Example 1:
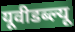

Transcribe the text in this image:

यूवीडब्ल्यू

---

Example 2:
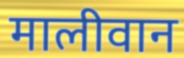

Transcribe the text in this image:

मालीवान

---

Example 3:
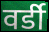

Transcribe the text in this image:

वर्डी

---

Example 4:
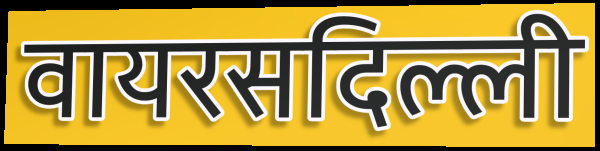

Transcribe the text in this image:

वायरसदिल्ली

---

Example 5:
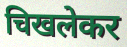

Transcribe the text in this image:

चिखलेकर